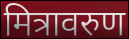
मित्रावरुण